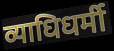
व्याधिधर्मी